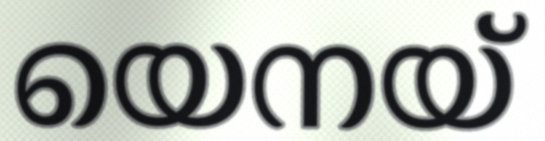
യെനയ്